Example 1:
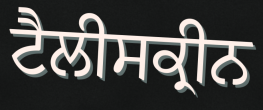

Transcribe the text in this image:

ਟੈਲੀਸਕ੍ਰੀਨ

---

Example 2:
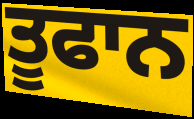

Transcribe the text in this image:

ਤੂਫਾਨ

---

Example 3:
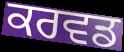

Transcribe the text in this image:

ਕਰਵਡ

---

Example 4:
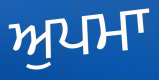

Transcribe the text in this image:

ਅੁਪਮਾ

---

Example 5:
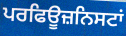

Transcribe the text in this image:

ਪਰਫਿਊਜ਼ਨਿਸਟਾਂ